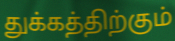
துக்கத்திற்கும்